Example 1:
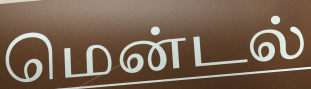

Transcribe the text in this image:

மென்டல்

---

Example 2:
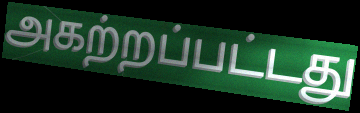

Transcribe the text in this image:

அகற்றப்பட்டது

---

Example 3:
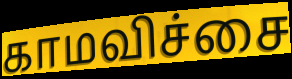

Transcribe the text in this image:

காமவிச்சை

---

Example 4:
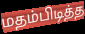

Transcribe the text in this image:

மதம்பிடித்த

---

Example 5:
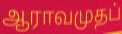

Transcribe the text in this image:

ஆராவமுதப்